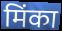
मिंका